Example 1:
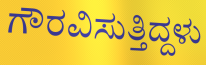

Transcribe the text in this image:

ಗೌರವಿಸುತ್ತಿದ್ದಳು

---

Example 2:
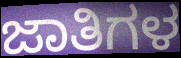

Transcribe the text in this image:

ಜಾತಿಗಳ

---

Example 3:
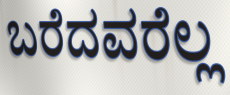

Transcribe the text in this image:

ಬರೆದವರೆಲ್ಲ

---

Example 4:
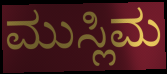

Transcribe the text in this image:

ಮುಸ್ಲಿಮ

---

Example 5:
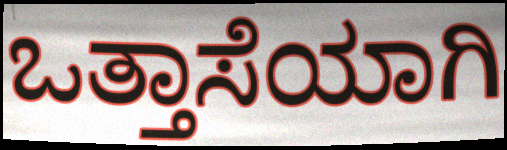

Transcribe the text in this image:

ಒತ್ತಾಸೆಯಾಗಿ